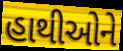
હાથીઓને